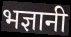
भज्ञानी